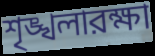
শৃঙ্খলারক্ষা